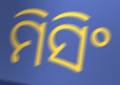
ମିସିଂ